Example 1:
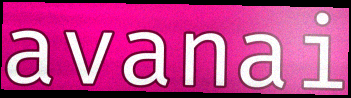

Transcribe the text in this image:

avanai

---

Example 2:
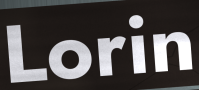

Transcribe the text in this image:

Lorin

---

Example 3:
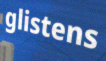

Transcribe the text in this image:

glistens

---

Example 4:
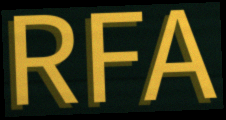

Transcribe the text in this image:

RFA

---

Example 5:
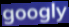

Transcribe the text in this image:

googly